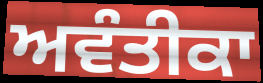
ਅਵੰਤੀਕਾ